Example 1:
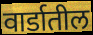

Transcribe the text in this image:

वार्डातील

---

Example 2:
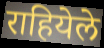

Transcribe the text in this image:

राहियेले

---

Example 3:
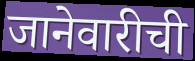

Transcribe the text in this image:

जानेवारीची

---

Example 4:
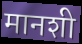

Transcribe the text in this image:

मानशी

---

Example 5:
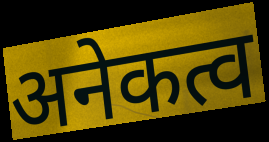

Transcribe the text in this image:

अनेकत्व